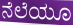
ನೆಲೆಯೂ